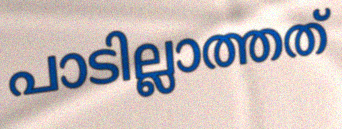
പാടില്ലാത്തത്